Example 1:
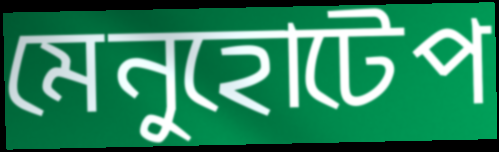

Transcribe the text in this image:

মেনুহোটেপ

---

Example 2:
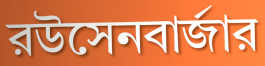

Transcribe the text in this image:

রউসেনবার্জার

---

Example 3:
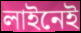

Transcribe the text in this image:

লাইনেই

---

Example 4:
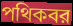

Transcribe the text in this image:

পথিকবর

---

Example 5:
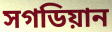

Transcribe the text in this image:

সগডিয়ান